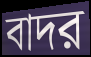
বাদর